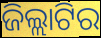
ଜିଲ୍ଲାଟିର